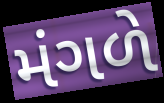
મંગળે